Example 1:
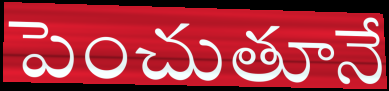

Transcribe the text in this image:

పెంచుతూనే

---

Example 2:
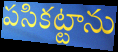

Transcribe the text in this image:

పసికట్టాను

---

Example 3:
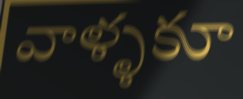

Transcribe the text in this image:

వాళ్ళకూ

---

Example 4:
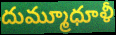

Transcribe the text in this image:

దుమ్మూధూళీ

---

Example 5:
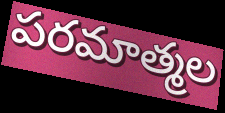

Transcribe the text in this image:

పరమాత్మల